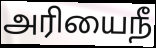
அரியைநீ